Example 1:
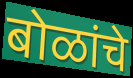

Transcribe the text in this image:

बोळांचे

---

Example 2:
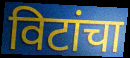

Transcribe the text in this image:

विटांचा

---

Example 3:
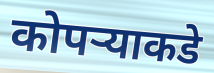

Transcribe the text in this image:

कोपऱ्याकडे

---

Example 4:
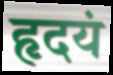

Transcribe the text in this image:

हृदयं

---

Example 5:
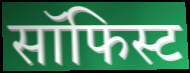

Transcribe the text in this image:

सॉफिस्ट